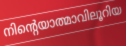
നിന്റെയാത്മാവിലൂറിയ